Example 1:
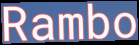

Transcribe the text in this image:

Rambo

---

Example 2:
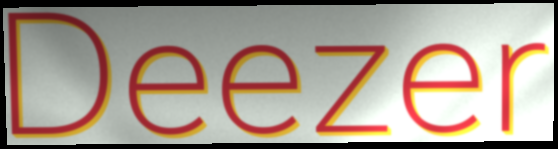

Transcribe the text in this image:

Deezer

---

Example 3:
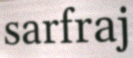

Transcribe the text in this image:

sarfraj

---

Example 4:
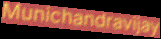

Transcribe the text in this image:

Munichandravijay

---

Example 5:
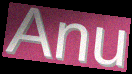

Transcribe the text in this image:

Anu